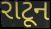
રાટૂન